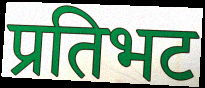
प्रतिभट